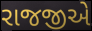
રાજજીએ